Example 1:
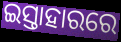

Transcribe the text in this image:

ଇସ୍ତାହାରରେ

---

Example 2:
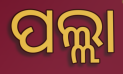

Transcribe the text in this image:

ପଲ୍ଲା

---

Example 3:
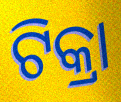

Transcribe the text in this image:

ଟିକ୍ରା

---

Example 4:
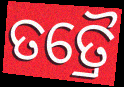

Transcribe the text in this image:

ତତ୍ରୈ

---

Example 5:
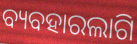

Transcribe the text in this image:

ବ୍ୟବହାରଲାଗି